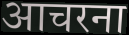
आचरना